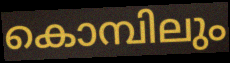
കൊമ്പിലും